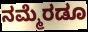
ನಮ್ಮೆರಡೂ